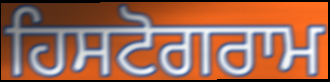
ਹਿਸਟੋਗਰਾਮ